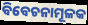
ବିବେଚନାମୂଳକ